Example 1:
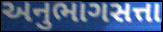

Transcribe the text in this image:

અનુભાગસત્તા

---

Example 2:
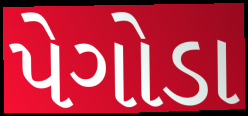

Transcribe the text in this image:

પેગોડા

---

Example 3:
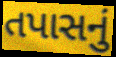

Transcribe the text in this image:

તપાસનું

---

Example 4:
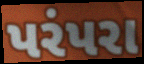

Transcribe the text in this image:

પરંપરા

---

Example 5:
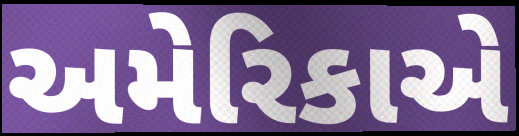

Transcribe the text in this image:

અમેરિકાએ